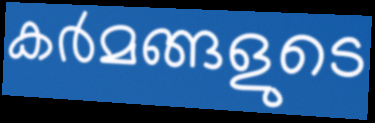
കർമങ്ങളുടെ